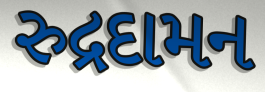
રુદ્રદામન